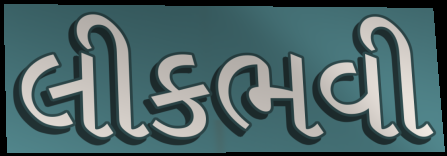
લીકભવી